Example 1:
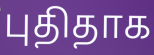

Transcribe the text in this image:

புதிதாக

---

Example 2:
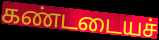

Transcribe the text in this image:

கண்டடையச்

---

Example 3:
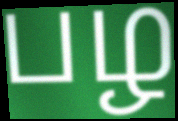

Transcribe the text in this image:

பழ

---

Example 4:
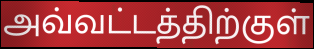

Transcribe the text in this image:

அவ்வட்டத்திற்குள்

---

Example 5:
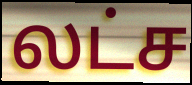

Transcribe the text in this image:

லட்ச